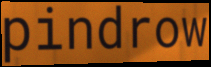
pindrow